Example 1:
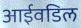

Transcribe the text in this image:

आईवडिल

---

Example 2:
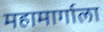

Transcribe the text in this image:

महामार्गाला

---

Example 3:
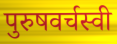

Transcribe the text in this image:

पुरुषवर्चस्वी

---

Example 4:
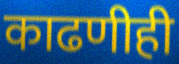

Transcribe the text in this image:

काढणीही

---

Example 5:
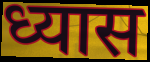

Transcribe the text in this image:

ध्यास